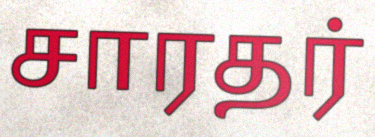
சாரதர்